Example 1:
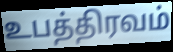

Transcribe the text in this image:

உபத்திரவம்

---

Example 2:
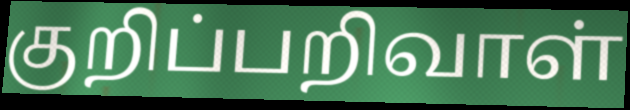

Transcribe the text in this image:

குறிப்பறிவாள்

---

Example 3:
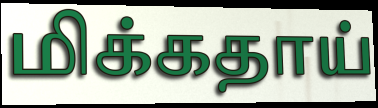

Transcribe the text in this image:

மிக்கதாய்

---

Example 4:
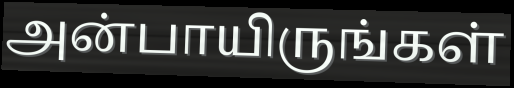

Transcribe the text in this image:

அன்பாயிருங்கள்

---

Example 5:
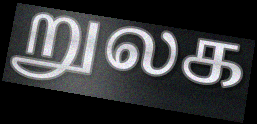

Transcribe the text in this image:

றுலக